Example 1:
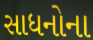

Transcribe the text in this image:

સાધનોના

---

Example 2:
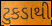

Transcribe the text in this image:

ટુકડાથી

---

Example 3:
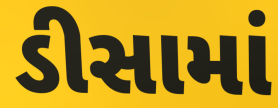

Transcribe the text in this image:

ડીસામાં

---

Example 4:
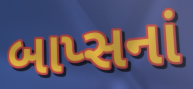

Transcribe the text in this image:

બાપ્સનાં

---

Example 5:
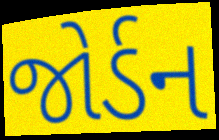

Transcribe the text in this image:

જોર્ડન